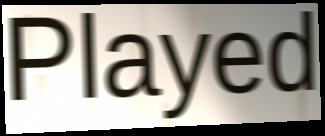
Played